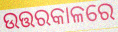
ଉତ୍ତରକାଳରେ